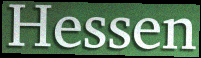
Hessen